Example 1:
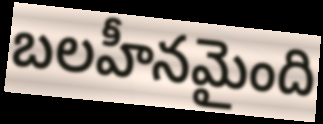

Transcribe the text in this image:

బలహీనమైంది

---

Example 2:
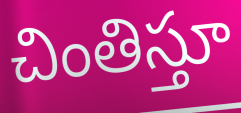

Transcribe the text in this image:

చింతిస్తూ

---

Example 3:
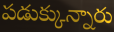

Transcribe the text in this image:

పడుక్కున్నారు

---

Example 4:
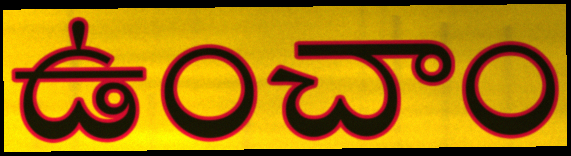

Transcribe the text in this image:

ఉంచాం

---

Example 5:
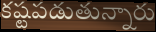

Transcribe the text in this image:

కష్టపడుతున్నారు